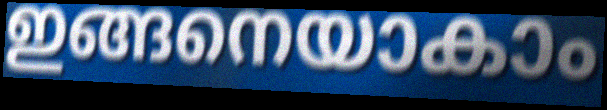
ഇങ്ങനെയാകാം